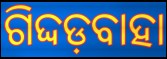
ଗିଦ୍ଦଡ଼ବାହା